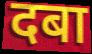
दबा